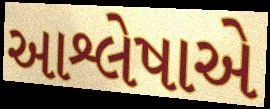
આશ્લેષાએ